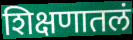
शिक्षणातलं